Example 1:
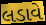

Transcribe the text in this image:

લડાવે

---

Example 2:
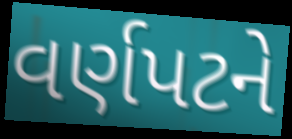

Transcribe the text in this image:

વર્ણપટને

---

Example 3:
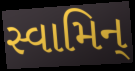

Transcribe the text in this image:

સ્વામિન્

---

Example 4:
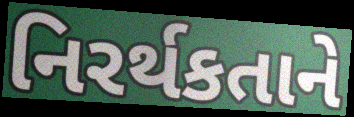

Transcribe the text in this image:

નિરર્થકતાને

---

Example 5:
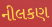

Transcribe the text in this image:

નીલકણ